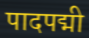
पादपद्मी